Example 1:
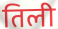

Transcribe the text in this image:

तिली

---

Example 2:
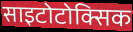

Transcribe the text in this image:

साइटोटोक्सिक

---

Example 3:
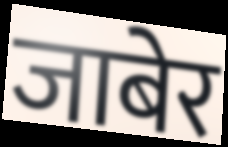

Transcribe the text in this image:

जाबेर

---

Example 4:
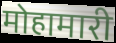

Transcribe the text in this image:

मोहामारी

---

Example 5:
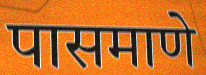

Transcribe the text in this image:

पासमाणे